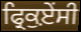
ਫ੍ਰਿਕ਼ੁਏਂਸੀ